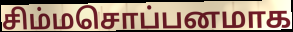
சிம்மசொப்பனமாக